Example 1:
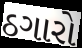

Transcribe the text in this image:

ઠગારો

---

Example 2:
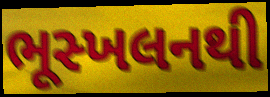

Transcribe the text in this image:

ભૂસ્ખલનથી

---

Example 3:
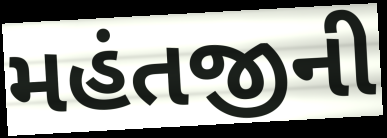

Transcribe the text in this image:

મહંતજીની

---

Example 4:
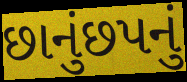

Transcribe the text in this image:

છાનુંછપનું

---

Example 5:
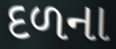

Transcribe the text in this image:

દળના